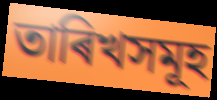
তাৰিখসমূহ